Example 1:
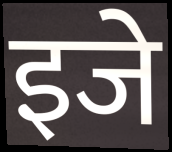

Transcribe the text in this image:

इजे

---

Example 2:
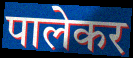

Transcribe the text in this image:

पालेकर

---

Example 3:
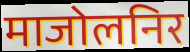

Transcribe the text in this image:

माजोलनिर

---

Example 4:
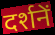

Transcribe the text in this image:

दर्शनें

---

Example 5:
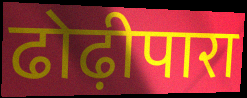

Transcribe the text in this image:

ढोढ़ीपारा